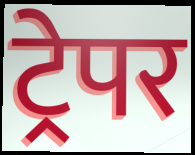
ट्रेपर